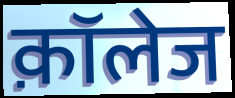
क़ॉलेज